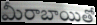
మీరాబాయితో